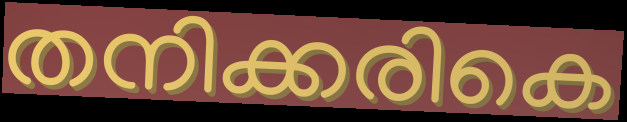
തനിക്കരികെ